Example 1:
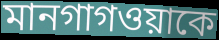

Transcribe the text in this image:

মানগাগওয়াকে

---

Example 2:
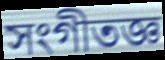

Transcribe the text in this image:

সংগীতজ্ঞ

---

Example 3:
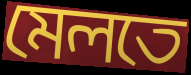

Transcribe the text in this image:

মেলতে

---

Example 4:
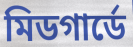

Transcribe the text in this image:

মিডগার্ডে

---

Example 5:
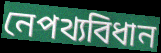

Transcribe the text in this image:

নেপথ্যবিধান